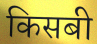
किसबी